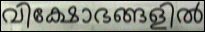
വിക്ഷോഭങ്ങളിൽ